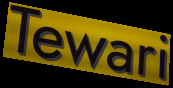
Tewari